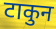
टाकुन